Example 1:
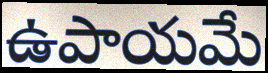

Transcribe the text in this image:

ఉపాయమే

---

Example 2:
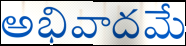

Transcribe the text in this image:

అభివాదమే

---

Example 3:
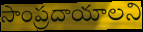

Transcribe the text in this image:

సాంప్రదాయాలని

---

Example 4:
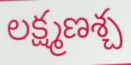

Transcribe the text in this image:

లక్ష్మణశ్చ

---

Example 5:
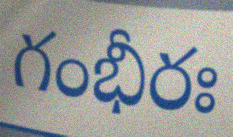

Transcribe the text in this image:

గంభీరః